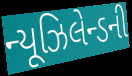
ન્યૂઝિલેન્ડની